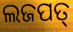
ଲଜପତ୍